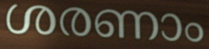
ശരണാം